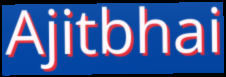
Ajitbhai